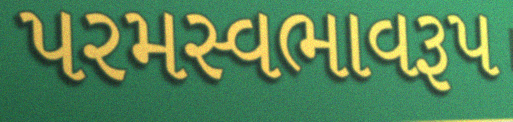
પરમસ્વભાવરૂપ